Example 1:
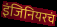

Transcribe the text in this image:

इंजिनियरचं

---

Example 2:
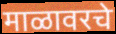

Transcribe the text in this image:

माळावरचे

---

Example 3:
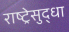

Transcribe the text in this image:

राष्ट्रेसुद्धा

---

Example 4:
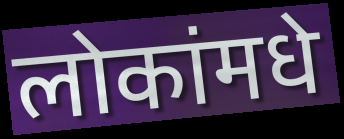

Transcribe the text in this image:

लोकांमधे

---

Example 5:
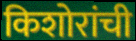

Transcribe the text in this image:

किशोरांची